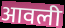
आवली